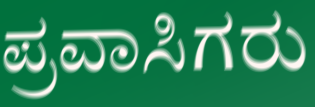
ಪ್ರವಾಸಿಗರು